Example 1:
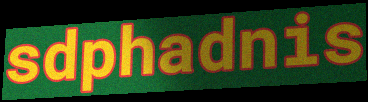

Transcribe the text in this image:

sdphadnis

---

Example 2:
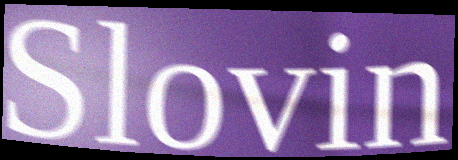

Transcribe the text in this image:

Slovin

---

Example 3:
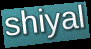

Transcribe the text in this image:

shiyal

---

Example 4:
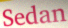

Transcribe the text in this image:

Sedan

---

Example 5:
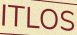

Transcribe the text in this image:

ITLOS